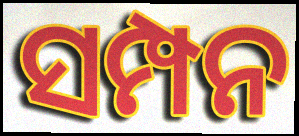
ସମ୍ପନ